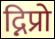
द्निप्रो